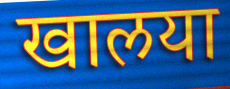
खालया